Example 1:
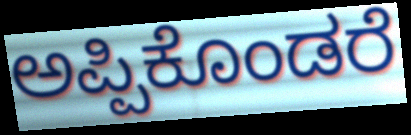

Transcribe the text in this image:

ಅಪ್ಪಿಕೊಂಡರೆ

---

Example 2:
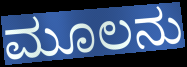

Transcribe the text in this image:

ಮೂಲನು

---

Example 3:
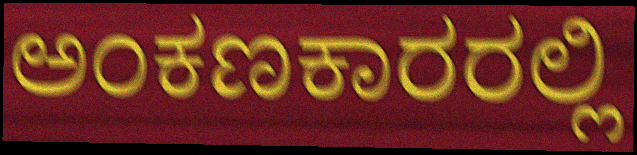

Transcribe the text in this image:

ಅಂಕಣಕಾರರಲ್ಲಿ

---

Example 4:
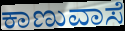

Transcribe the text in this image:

ಕಾಣುವಾಸೆ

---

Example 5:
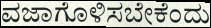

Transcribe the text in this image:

ವಜಾಗೊಳಿಸಬೇಕೆಂದು